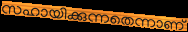
സഹായിക്കുന്നതെന്നാണ്